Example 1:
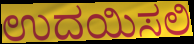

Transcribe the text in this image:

ಉದಯಿಸಲಿ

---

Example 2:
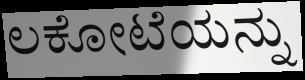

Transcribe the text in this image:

ಲಕೋಟೆಯನ್ನು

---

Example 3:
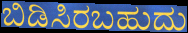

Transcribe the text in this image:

ಬಿಡಿಸಿರಬಹುದು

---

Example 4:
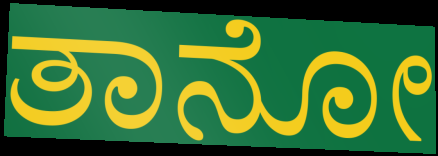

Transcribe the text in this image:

ತಾನೋ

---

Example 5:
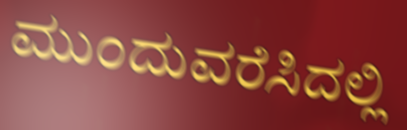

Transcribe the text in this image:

ಮುಂದುವರೆಸಿದಲ್ಲಿ